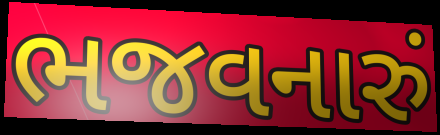
ભજવનારું